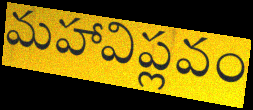
మహావిప్లవం